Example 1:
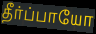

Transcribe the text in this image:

தீர்ப்பாயோ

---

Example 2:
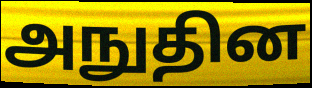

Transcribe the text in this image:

அநுதின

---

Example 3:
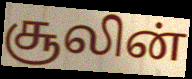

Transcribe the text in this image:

சூலின்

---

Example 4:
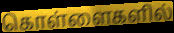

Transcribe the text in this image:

கொள்ளைகளில்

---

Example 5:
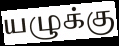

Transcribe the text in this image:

யழுக்கு